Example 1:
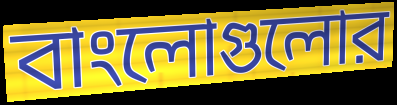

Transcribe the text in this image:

বাংলোগুলোর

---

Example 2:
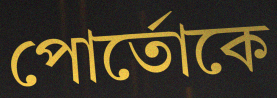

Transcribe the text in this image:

পোর্তোকে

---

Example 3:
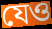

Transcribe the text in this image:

যেও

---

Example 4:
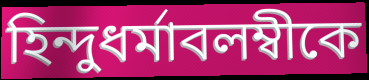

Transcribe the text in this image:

হিন্দুধর্মাবলম্বীকে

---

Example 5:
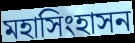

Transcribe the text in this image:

মহাসিংহাসন